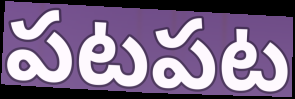
పటపట